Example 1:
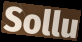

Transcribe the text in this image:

Sollu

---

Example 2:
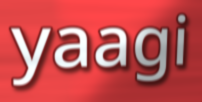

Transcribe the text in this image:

yaagi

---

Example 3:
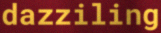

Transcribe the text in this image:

dazziling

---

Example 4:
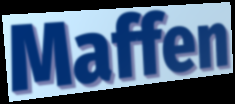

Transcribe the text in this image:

Maffen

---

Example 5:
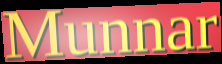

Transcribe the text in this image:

Munnar